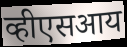
व्हीएसआय